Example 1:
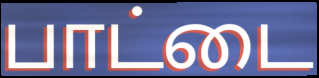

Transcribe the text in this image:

பாட்டை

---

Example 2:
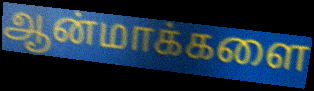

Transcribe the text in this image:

ஆன்மாக்களை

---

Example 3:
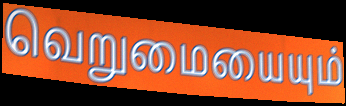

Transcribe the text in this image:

வெறுமையையும்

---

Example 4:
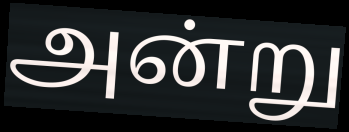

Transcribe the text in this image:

அன்று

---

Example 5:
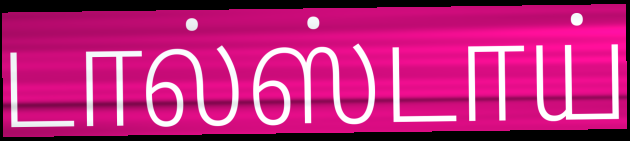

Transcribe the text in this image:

டால்ஸ்டாய்